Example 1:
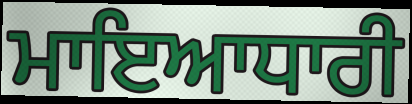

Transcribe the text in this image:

ਮਾਇਆਧਾਰੀ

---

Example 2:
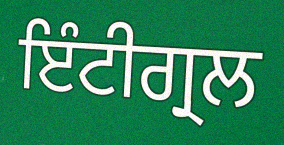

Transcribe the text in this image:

ਇੰਟੀਗ੍ਰਲ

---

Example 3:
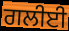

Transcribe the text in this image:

ਗਲੀਈ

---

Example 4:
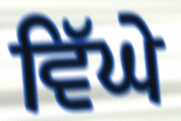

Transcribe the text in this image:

ਵਿੱਘੇ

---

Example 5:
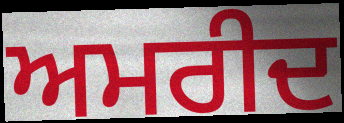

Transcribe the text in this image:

ਅਮਰੀਦ